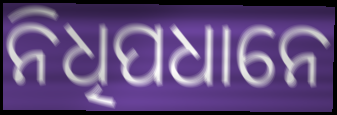
ନିଧିପଧାନେ